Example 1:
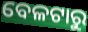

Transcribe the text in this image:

ବେଳଟାରୁ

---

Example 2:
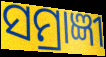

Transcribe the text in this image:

ସମ୍ରାଜ୍ଞୀ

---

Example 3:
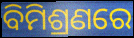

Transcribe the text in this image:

ବିମିଶ୍ରଣରେ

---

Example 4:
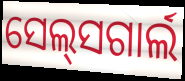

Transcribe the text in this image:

ସେଲ୍‍ସଗାର୍ଲ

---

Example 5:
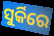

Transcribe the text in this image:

ସୁର୍କିରେ